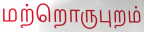
மற்றொருபுறம்